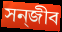
সন্জীব